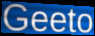
Geeto